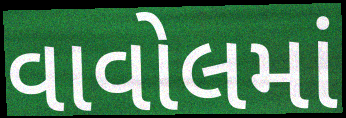
વાવોલમાં